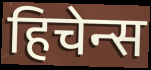
हिचेन्स